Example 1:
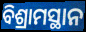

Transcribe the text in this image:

ବିଶ୍ରାମସ୍ଥାନ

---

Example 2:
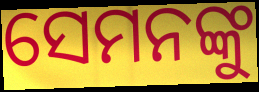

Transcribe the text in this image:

ସେମନଙ୍କୁ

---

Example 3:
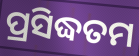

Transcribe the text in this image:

ପ୍ରସିଦ୍ଧତମ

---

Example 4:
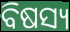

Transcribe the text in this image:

ବିଷସ୍ୟ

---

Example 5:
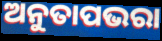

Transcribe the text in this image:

ଅନୁତାପଭରା